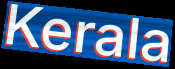
Kerala